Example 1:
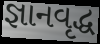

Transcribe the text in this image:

જ્ઞાનવૃદ્ધ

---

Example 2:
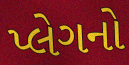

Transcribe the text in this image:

પ્લેગનો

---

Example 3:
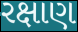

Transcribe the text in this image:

રક્ષાણ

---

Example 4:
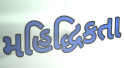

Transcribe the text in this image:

મહિદ્ધિકતા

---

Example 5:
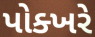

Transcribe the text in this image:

પોક્ખરે